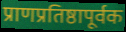
प्राणप्रतिष्ठापूर्वक